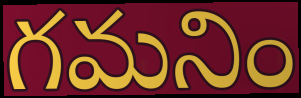
గమనిం